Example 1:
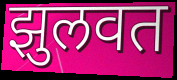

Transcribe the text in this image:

झुलवत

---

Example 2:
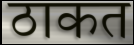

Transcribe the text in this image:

ठाकत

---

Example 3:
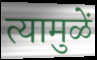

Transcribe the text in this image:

त्यामुळें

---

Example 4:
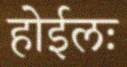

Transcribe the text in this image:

होईलः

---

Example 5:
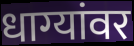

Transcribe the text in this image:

धाग्यांवर